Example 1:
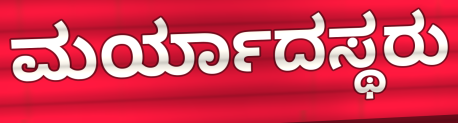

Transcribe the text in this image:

ಮರ್ಯಾದಸ್ಥರು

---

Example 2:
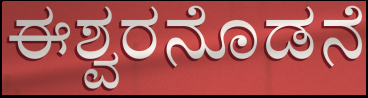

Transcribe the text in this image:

ಈಶ್ವರನೊಡನೆ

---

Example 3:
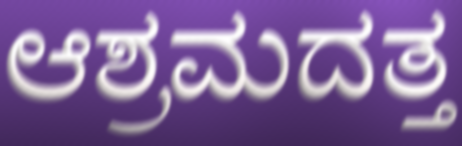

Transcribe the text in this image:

ಆಶ್ರಮದತ್ತ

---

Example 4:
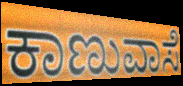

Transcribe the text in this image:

ಕಾಣುವಾಸೆ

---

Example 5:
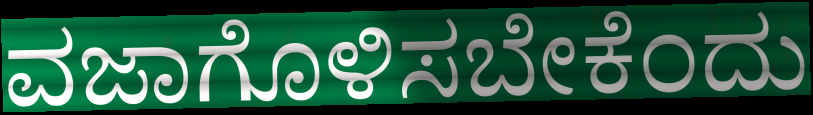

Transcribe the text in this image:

ವಜಾಗೊಳಿಸಬೇಕೆಂದು